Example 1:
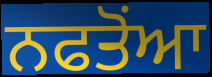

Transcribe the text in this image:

ਨਫਤੋਂਆ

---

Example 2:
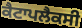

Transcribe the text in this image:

ਕੈਟਾਪਲੈਕਸੀ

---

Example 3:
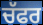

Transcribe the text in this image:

ਚੱਫਰ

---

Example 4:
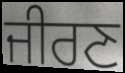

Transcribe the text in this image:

ਜੀਰਣ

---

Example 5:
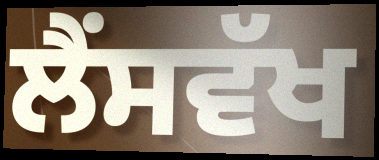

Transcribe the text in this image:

ਲੈਂਸਵੱਖ